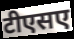
टीएसए